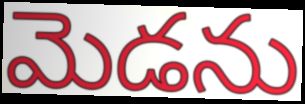
మెడను